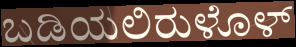
ಬಡಿಯಲಿರುಳೊಳ್